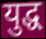
युद्ध